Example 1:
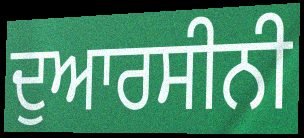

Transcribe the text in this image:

ਦੁਆਰਸੀਨੀ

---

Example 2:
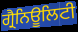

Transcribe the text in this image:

ਗ੍ਰੈਨਿਊਲਿਟੀ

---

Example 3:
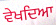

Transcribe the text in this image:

ਵੇਖਦਿਆ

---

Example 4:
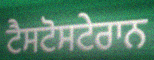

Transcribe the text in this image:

ਟੈਸਟੋਸਟੇਰਾਨ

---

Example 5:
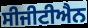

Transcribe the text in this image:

ਸੀਜੀਟੀਐਨ